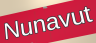
Nunavut